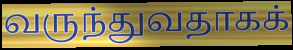
வருந்துவதாகக்